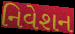
નિવેશન